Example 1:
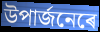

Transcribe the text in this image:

উপাৰ্জনেৰে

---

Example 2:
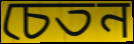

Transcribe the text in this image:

চেতন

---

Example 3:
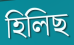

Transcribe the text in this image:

হিলিছ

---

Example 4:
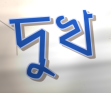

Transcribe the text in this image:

দুখ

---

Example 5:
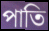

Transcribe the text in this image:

পাতি